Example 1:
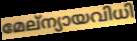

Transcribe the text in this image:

മേല്ന്യായവിധി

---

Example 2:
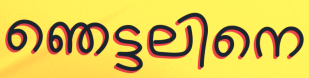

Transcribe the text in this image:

ഞെട്ടലിനെ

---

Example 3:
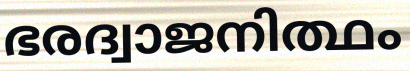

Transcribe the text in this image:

ഭരദ്വാജനിത്ഥം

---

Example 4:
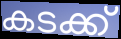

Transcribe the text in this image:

കടക്ക്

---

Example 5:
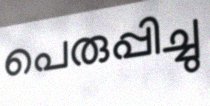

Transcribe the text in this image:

പെരുപ്പിച്ചു